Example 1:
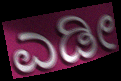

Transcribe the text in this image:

ಎಡೀ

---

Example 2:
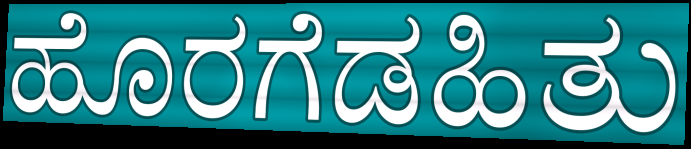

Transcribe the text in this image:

ಹೊರಗೆಡಹಿತು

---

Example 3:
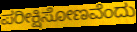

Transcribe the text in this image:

ಪರೀಕ್ಷಿಸೋಣವೆಂದು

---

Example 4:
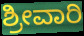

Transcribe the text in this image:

ಶ್ರೀವಾರಿ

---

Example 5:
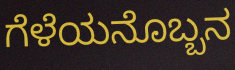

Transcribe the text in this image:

ಗೆಳೆಯನೊಬ್ಬನ